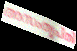
അസംതൃപ്തി